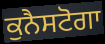
ਕੁਨੈਸਟੋਗਾ